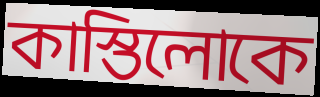
কাস্তিলোকে